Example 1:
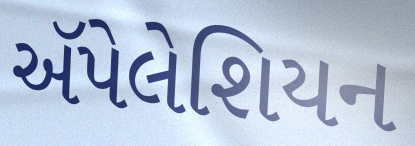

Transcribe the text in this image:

ઍપેલેશિયન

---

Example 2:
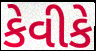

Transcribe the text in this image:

કેવીકે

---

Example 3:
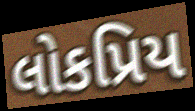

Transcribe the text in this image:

લોકપ્રિય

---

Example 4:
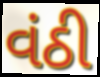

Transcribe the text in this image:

વંઠી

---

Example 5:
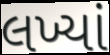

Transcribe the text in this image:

લખ્યાં